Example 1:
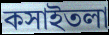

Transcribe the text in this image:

কসাইতলা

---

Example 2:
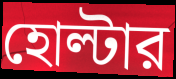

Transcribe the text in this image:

হোল্টার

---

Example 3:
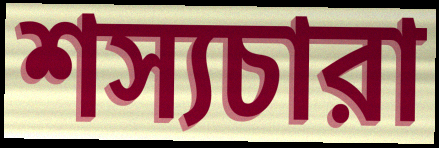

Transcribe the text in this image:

শস্যচারা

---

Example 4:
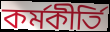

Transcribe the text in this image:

কর্মকীর্তি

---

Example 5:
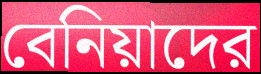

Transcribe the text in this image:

বেনিয়াদের